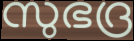
സുഭദ്ര